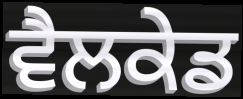
ਵੈਲਕੇਡ